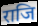
राजि